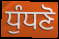
ਧੁੰਧਣੋ